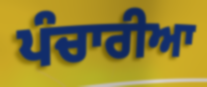
ਪੰਚਾਰੀਆ